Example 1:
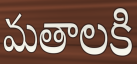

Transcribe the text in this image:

మతాలకి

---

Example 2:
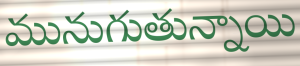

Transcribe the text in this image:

మునుగుతున్నాయి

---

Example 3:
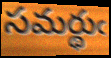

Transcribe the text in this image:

సమర్థుఁ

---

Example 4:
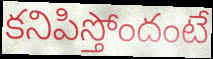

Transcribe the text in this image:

కనిపిస్తోందంటే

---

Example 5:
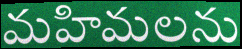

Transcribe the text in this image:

మహిమలను